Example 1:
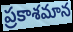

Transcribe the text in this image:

ప్రకాశమాన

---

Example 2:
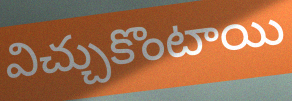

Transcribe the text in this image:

విచ్చుకొంటాయి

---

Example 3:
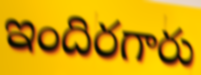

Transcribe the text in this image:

ఇందిరగారు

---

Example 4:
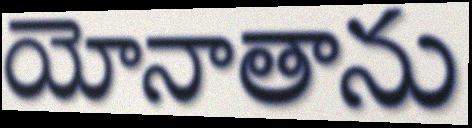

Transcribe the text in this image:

యోనాతాను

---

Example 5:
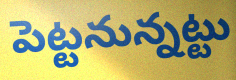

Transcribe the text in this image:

పెట్టనున్నట్టు